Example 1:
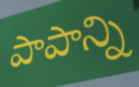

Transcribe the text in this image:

పాపాన్ని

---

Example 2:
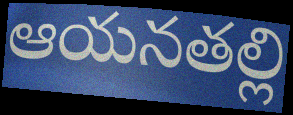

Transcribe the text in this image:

ఆయనతల్లి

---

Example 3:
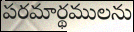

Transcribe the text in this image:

పరమార్థములను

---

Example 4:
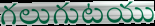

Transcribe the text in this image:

గలుగుటయు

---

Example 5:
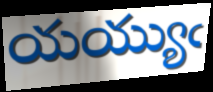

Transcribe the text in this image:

యయ్యుఁ